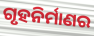
ଗୃହନିର୍ମାଣର